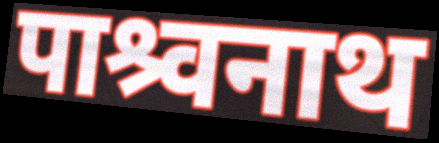
पाश्र्वनाथ